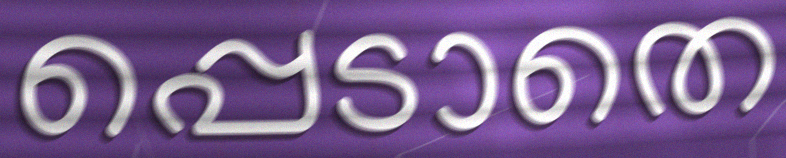
പ്പെടാതെ